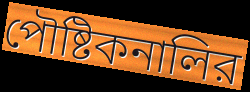
পৌষ্টিকনালির